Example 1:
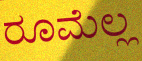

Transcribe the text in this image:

ರೂಮೆಲ್ಲ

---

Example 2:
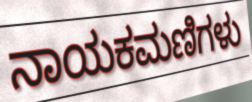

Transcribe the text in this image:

ನಾಯಕಮಣಿಗಳು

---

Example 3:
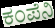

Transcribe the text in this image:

ಕಂಪೆನಿ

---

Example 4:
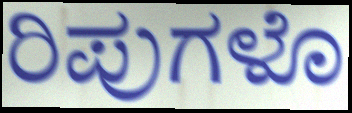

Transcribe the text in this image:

ರಿಪುಗಳೊ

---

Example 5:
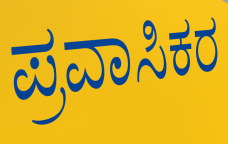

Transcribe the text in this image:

ಪ್ರವಾಸಿಕರ